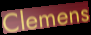
Clemens